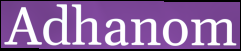
Adhanom